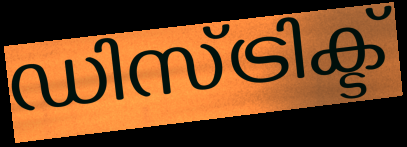
ഡിസ്ട്രിക്ട്